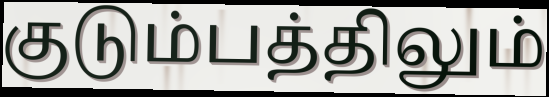
குடும்பத்திலும்